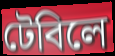
টেবিলে